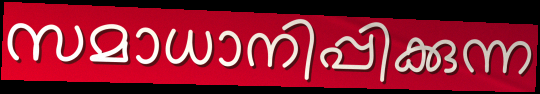
സമാധാനിപ്പിക്കുന്ന